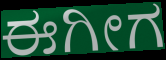
ಈಗೀಗ